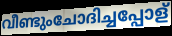
വീണ്ടുംചോദിച്ചപ്പോള്